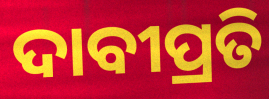
ଦାବୀପ୍ରତି